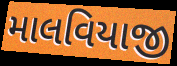
માલવિયાજી